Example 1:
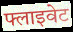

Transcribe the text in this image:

फ्लाइवेट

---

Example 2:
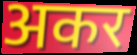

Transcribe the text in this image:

अकर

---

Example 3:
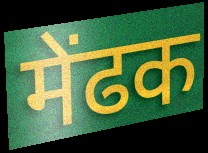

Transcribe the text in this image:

मेंढक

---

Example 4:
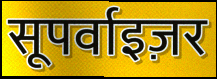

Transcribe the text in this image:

सूपर्वाइज़र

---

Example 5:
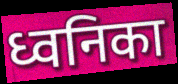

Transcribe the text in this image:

ध्वनिका